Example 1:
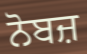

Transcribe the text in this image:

ਨੋਬਜ਼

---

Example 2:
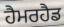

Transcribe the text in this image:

ਹੈਮਰਹੈਡ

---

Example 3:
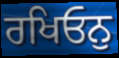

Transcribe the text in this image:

ਰਖਿਓਨੁ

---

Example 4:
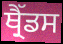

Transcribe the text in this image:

ਥ੍ਰੈੱਡਸ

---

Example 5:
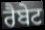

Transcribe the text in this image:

ਰੈਬੇਟ